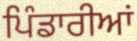
ਪਿੰਡਾਰੀਆਂ